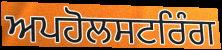
ਅਪਹੋਲਸਟਰਿੰਗ